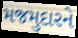
મજમુદારને